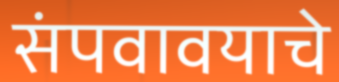
संपवावयाचे